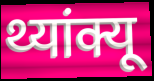
थ्यांक्यू